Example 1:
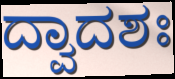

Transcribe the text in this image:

ದ್ವಾದಶಃ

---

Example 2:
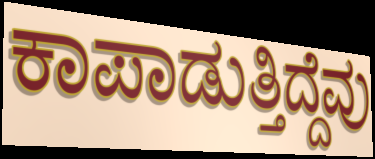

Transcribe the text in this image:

ಕಾಪಾಡುತ್ತಿದ್ದೆವು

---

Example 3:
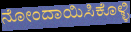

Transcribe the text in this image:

ನೋಂದಾಯಿಸಿಕೊಳ್ಳಿ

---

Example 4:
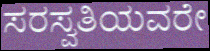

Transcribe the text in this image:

ಸರಸ್ವತಿಯವರೇ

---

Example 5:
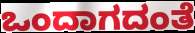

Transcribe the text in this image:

ಒಂದಾಗದಂತೆ